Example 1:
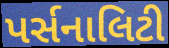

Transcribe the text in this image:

પર્સનાલિટી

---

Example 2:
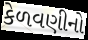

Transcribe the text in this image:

કેળવણીનો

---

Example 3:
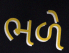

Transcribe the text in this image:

ભળે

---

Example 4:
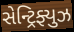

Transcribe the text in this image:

સેન્ટ્રિફ્યુઝ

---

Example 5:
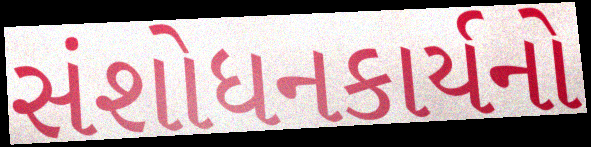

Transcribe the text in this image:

સંશોધનકાર્યનો